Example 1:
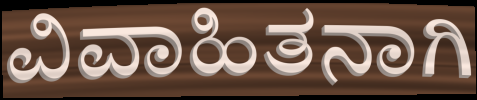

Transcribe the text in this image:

ವಿವಾಹಿತನಾಗಿ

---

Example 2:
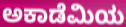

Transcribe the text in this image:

ಅಕಾಡೆಮಿಯ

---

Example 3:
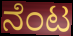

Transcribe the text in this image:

ನೆಂಟ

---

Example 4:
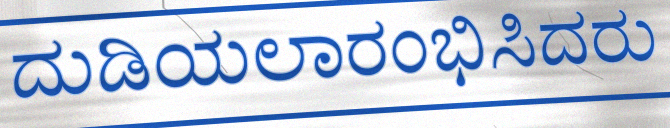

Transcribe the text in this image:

ದುಡಿಯಲಾರಂಭಿಸಿದರು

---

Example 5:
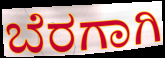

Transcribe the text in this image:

ಬೆರಗಾಗಿ